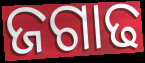
ଜଗାଢ